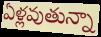
ఏళ్లవుతున్నా